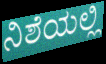
ನಿಶೆಯಲ್ಲಿ